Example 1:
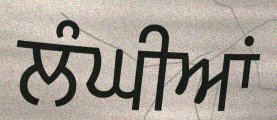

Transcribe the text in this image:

ਲੰਘੀਆਂ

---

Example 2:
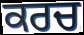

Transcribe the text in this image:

ਕਰਚ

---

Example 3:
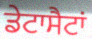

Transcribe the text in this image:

ਡੇਟਾਸੈਟਾਂ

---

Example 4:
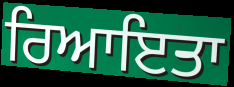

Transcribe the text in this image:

ਰਿਆਇਤਾ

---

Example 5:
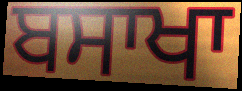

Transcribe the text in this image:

ਬਸਾਖਾ